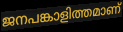
ജനപങ്കാളിത്തമാണ്